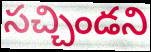
సచ్చిండని